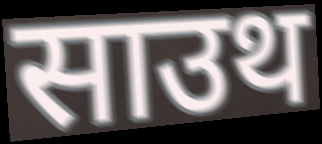
साउथ